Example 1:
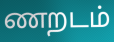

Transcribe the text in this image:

ணறடம்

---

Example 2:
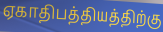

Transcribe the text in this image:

ஏகாதிபத்தியத்திற்கு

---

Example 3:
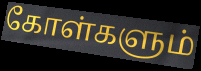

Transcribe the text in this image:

கோள்களும்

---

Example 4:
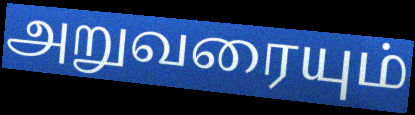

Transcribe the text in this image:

அறுவரையும்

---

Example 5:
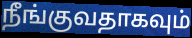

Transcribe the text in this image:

நீங்குவதாகவும்